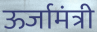
ऊर्जामंत्री